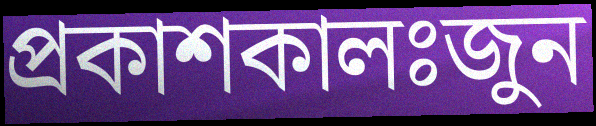
প্রকাশকালঃজুন